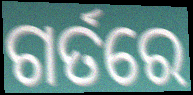
ଗର୍ତରେ